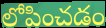
లోపించడం